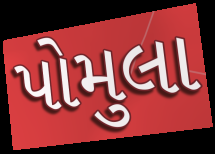
પોમુલા